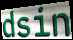
dsin